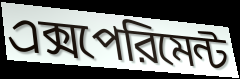
এক্সপেরিমেন্ট